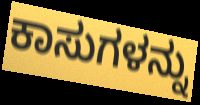
ಕಾಸುಗಳನ್ನು